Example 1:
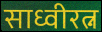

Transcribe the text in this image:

साध्वीरत्न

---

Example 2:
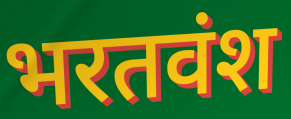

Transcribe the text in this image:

भरतवंश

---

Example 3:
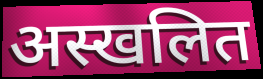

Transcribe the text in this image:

अस्खलित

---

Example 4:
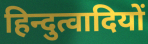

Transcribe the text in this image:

हिन्दुत्वादियों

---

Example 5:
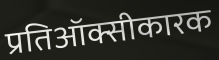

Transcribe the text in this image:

प्रतिऑक्सीकारक